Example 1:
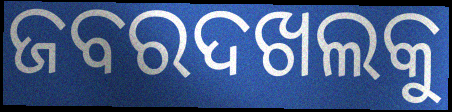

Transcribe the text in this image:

ଜବରଦଖଲକୁ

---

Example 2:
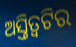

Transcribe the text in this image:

ଅସ୍ତିତ୍ୱଟିର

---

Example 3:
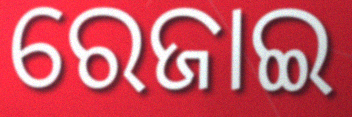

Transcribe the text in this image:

ରେଜାଇ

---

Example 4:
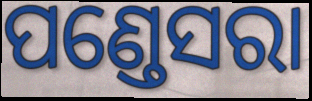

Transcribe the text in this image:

ପଣ୍ଡେସରା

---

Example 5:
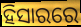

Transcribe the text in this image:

ହିସାରରେ